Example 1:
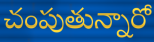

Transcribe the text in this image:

చంపుతున్నారో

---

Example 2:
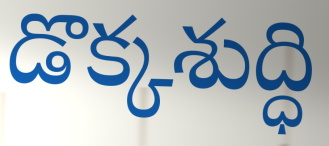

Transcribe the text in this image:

డొక్కశుద్ధి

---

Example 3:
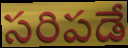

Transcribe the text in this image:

సరిపడే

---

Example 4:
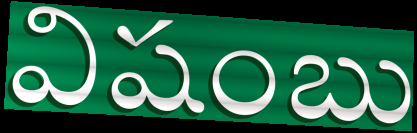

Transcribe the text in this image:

విషంబు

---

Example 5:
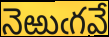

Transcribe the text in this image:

నెఱుఁగవే